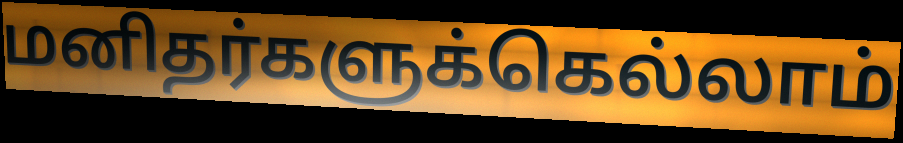
மனிதர்களுக்கெல்லாம்